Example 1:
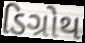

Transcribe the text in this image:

ડિગ્રોથ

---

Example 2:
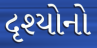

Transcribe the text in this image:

દૃશ્યોનો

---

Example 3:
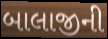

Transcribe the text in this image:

બાલાજીની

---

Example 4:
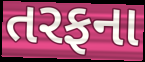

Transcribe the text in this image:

તરફના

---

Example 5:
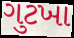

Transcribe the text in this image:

ગુટખા